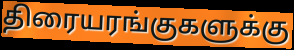
திரையரங்குகளுக்கு